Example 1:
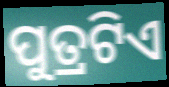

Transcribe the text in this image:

ପୁତ୍ରଟିଏ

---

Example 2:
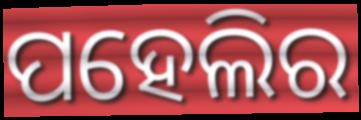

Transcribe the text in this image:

ପହେଲିର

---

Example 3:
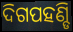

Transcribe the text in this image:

ଦିଗପହଣ୍ଡି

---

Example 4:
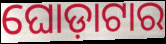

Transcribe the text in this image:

ଘୋଡ଼ାଟାର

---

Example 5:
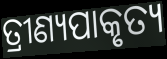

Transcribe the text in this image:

ତ୍ରୀଣ୍ୟପାକୃତ୍ୟ